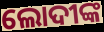
ଲୋଦୀଙ୍କ